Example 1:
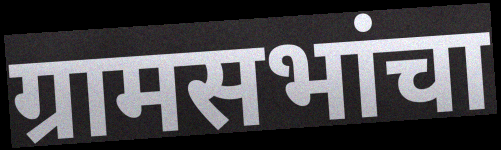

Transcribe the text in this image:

ग्रामसभांचा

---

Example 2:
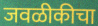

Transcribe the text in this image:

जवळीकीचा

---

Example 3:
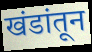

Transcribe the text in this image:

खंडांतून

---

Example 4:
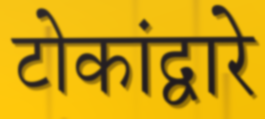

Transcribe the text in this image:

टोकांद्वारे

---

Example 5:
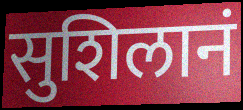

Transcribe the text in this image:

सुशिलानं